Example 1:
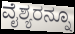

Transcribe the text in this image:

ವೈಶ್ಯರನ್ನೂ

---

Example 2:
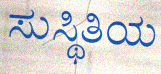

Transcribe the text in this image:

ಸುಸ್ಥಿತಿಯ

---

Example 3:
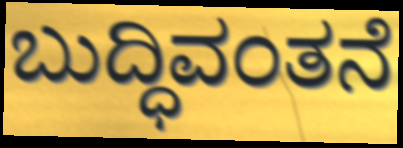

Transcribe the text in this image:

ಬುದ್ಧಿವಂತನೆ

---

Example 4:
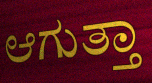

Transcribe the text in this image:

ಆಗುತ್ತಾ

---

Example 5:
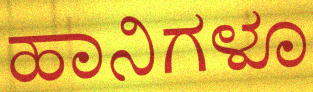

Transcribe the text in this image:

ಹಾನಿಗಳೂ